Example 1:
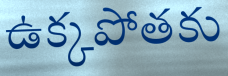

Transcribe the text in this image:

ఉక్కపోతకు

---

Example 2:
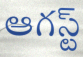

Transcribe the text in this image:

ఆగస్ట్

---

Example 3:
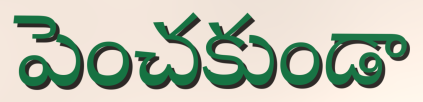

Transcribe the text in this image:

పెంచకుండా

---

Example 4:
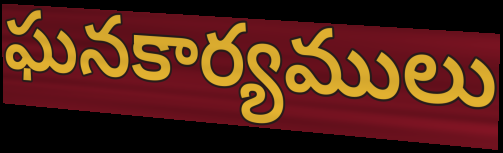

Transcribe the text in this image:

ఘనకార్యములు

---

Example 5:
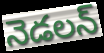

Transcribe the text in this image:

నెడలన్